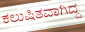
ಕಲುಷಿತವಾಗಿದ್ದ